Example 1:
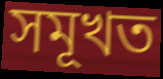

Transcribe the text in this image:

সমূখত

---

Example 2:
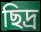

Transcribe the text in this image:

ছিদ্ৰ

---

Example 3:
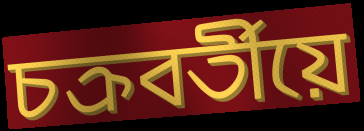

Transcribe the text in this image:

চক্ৰবৰ্তীয়ে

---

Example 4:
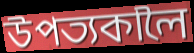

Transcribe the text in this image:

উপত্যকালৈ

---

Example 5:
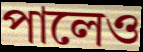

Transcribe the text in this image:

পালেও